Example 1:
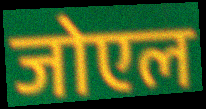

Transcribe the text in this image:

जोएल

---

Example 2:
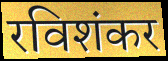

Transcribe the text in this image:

रविशंकर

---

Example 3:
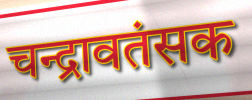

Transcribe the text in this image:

चन्द्रावतंसक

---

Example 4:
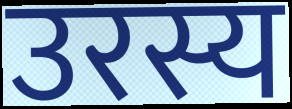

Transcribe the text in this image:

उरस्य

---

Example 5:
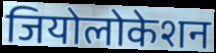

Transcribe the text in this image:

जियोलोकेशन